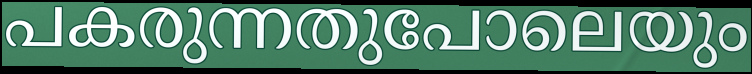
പകരുന്നതുപോലെയും